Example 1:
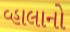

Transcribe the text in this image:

વ્હાલાનો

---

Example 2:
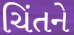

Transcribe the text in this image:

ચિંતને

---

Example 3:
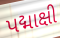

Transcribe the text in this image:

પદ્માક્ષી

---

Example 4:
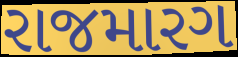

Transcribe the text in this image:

રાજમારગ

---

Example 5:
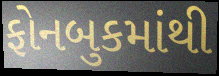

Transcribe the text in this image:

ફોનબુકમાંથી